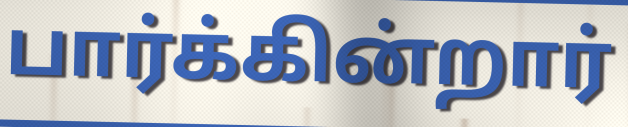
பார்க்கின்றார்